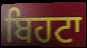
ਬਿਹਟਾ